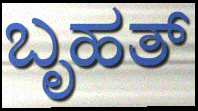
ಬೃಹತ್